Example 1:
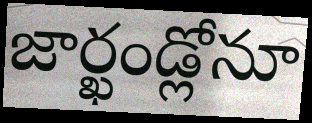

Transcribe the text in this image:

జార్ఖండ్లోనూ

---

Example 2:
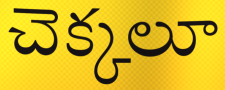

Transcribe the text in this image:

చెక్కలూ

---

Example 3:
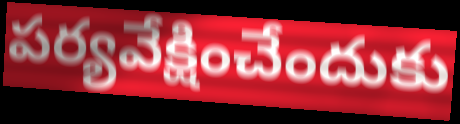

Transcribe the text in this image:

పర్యవేక్షించేందుకు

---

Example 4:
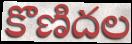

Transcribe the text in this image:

కొణిదల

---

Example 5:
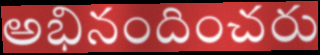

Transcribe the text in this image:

అభినందించరు